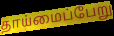
தாய்மைப்பேறு